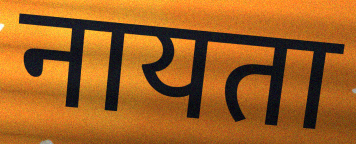
नायता